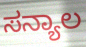
ಸನ್ಯಾಲ